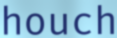
houch